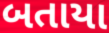
બતાયા